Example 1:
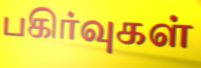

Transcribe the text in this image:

பகிர்வுகள்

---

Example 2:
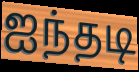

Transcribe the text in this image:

ஐந்தடி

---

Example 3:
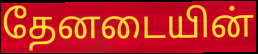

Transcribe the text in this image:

தேனடையின்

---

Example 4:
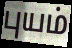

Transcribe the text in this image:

புயம்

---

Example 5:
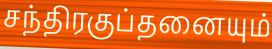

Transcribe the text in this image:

சந்திரகுப்தனையும்